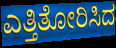
ಎತ್ತಿತೋರಿಸಿದ